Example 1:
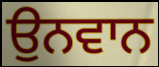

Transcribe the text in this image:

ਉਨਵਾਨ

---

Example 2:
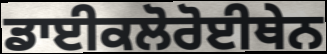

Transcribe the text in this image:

ਡਾਈਕਲੋਰੋਈਥੇਨ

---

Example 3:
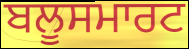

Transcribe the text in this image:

ਬਲੂਸਮਾਰਟ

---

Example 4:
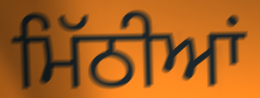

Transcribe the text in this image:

ਮਿੱਠੀਆਂ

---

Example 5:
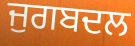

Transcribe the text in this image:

ਜੁਗਬਦਲ